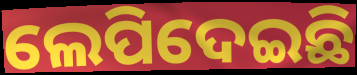
ଲେପିଦେଇଛି